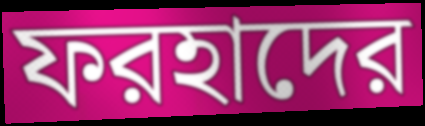
ফরহাদের